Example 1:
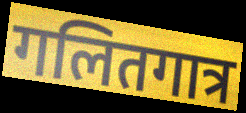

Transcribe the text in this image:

गलितगात्र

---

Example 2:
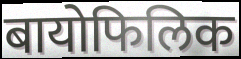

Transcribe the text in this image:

बायोफिलिक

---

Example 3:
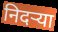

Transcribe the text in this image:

निदऱ्या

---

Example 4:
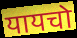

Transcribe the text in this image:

यायचो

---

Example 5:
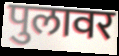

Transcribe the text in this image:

पुलावर